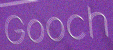
Gooch